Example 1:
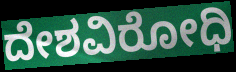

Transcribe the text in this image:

ದೇಶವಿರೋಧಿ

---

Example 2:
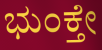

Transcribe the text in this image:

ಭುಂಕ್ತೇ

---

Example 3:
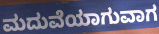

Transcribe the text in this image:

ಮದುವೆಯಾಗುವಾಗ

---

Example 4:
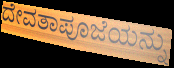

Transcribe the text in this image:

ದೇವತಾಪೂಜೆಯನ್ನು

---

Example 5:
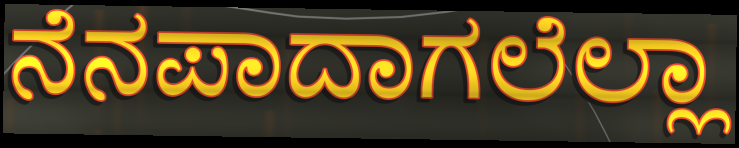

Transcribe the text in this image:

ನೆನಪಾದಾಗಲೆಲ್ಲಾ